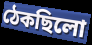
ঠেকছিলো